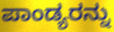
ಪಾಂಡ್ಯರನ್ನು